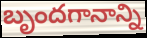
బృందగానాన్ని